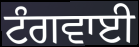
ਟੰਗਵਾਈ